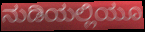
ನುಡಿಯಲ್ಲಿಯೂ